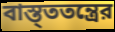
বাস্ত্ততন্ত্রের